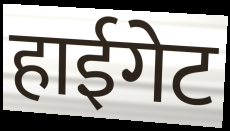
हाईगेट